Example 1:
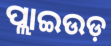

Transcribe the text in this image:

ପ୍ଲାଇଉଡ଼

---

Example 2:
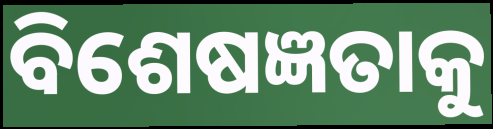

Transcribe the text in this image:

ବିଶେଷଜ୍ଞତାକୁ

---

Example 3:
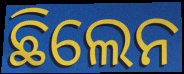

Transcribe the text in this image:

ଛିଲେନ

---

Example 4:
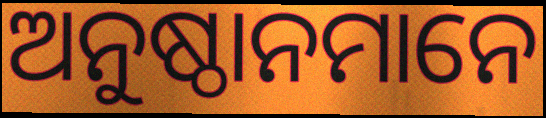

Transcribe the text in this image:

ଅନୁଷ୍ଠାନମାନେ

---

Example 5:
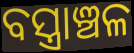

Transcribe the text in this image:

ବସ୍ତ୍ରାଞ୍ଚଳ